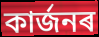
কাৰ্জনৰ